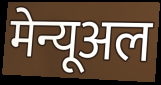
मेन्यूअल